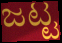
ಜಟ್ಟ